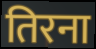
तिरना